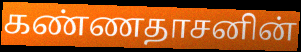
கண்ணதாசனின்